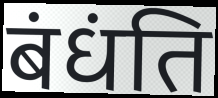
बंधंति